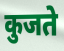
कुजते